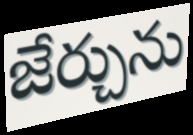
జేర్చును